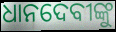
ଧାନଦେବୀଙ୍କୁ